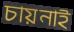
চায়নাই